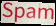
Spam